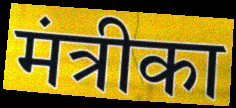
मंत्रीका